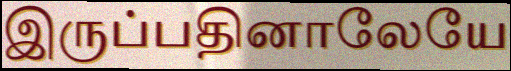
இருப்பதினாலேயே